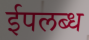
ईपलब्ध